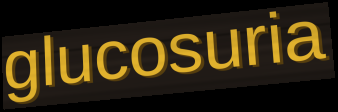
glucosuria